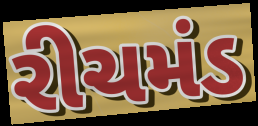
રીચમંડ